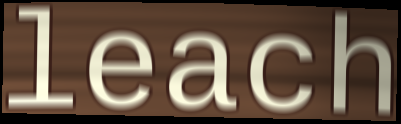
leach